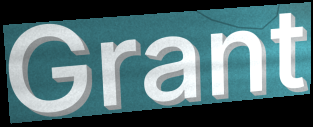
Grant